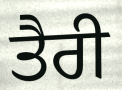
ਤੈਰੀ